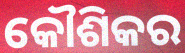
କୌଶିକର